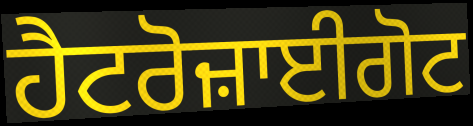
ਹੈਟਰੋਜ਼ਾਈਗੋਟ